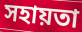
সহায়তা